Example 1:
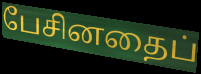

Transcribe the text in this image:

பேசினதைப்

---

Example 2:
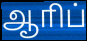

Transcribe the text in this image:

ஆரிப்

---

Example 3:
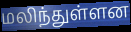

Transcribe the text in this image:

மலிந்துள்ளன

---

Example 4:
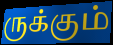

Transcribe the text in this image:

ருக்கும்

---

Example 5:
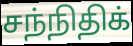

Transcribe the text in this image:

சந்நிதிக்